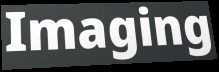
Imaging